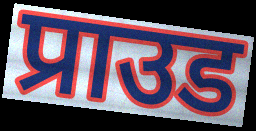
प्राउड